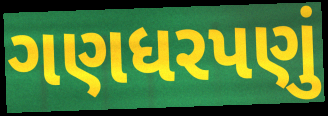
ગણધરપણું